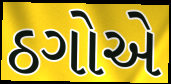
ઠગોએ